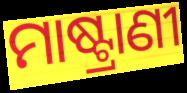
ମାଷ୍ଟ୍ରାଣୀ